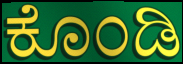
ಕೊಂಡಿ